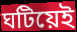
ঘটিয়েই